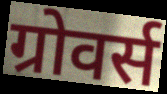
ग्रोवर्स